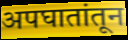
अपघातांतून